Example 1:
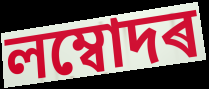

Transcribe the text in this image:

লম্বোদৰ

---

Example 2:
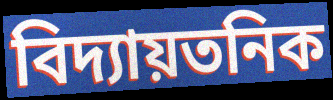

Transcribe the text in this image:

বিদ্যায়তনিক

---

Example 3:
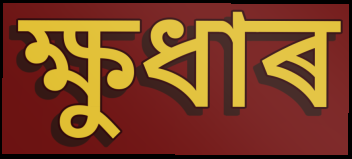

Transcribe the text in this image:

ক্ষুধাৰ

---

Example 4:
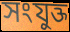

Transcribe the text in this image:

সংযুক্ত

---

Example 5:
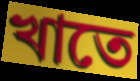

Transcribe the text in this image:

খাতে